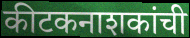
कीटकनाशकांची